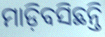
ମାଡ଼ିବସିଛନ୍ତି